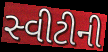
સ્વીટીની